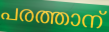
പരത്താന്